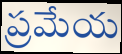
ప్రమేయ